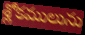
శ్లోకములును